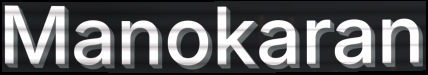
Manokaran